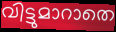
വിട്ടുമാറാതെ